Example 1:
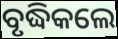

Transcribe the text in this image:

ବୃଦ୍ଧିକଲେ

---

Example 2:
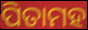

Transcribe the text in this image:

ପିତାମହ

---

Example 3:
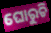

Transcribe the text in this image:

ଘୋରୁଚି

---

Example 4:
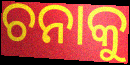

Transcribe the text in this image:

ଚନାକୁ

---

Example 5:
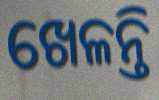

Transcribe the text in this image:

ଖେଳନ୍ତି